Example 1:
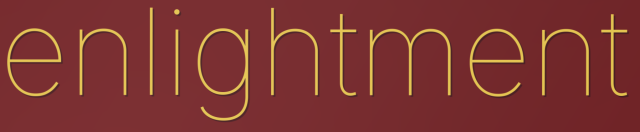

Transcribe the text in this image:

enlightment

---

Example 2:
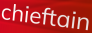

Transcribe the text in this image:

chieftain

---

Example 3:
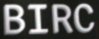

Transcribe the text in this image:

BIRC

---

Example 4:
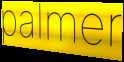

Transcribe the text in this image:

palmer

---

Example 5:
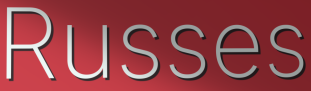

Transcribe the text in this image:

Russes